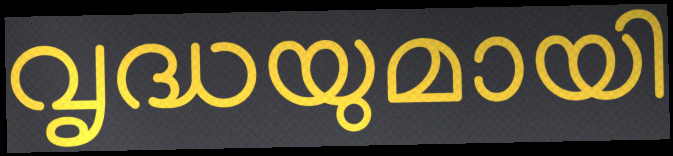
വൃദ്ധയുമായി